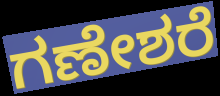
ಗಣೇಶರೆ